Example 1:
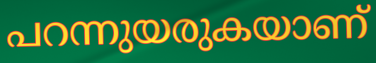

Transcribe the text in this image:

പറന്നുയരുകയാണ്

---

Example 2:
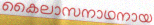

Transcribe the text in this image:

കൈലാസനാഥനായ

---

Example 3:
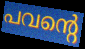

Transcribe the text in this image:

പവന്റെ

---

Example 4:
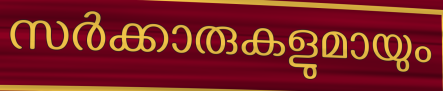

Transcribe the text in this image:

സർക്കാരുകളുമായും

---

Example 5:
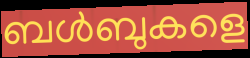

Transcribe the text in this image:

ബൾബുകളെ